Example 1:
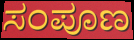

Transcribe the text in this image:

ಸಂಪೂಣ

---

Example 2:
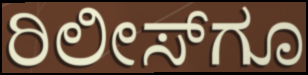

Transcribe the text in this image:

ರಿಲೀಸ್‌ಗೂ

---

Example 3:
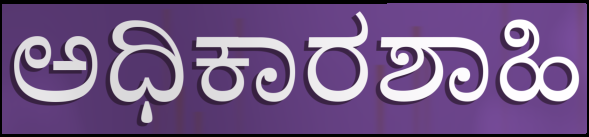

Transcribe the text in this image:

ಅಧಿಕಾರಶಾಹಿ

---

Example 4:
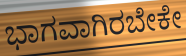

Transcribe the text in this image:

ಭಾಗವಾಗಿರಬೇಕೇ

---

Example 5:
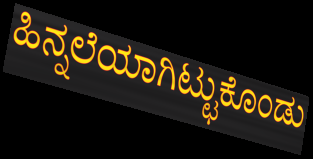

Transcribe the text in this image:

ಹಿನ್ನಲೆಯಾಗಿಟ್ಟುಕೊಂಡು